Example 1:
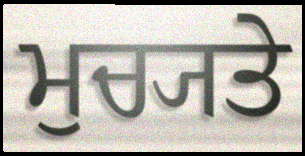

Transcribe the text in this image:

ਮੁਚ੍ਯਤੇ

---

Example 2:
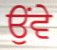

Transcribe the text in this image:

ਉੰਵੇ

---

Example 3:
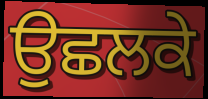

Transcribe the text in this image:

ਉਛਲਕੇ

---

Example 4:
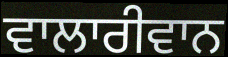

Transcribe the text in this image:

ਵਾਲਾਰੀਵਾਨ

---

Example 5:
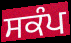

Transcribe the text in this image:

ਸਕੰਪ